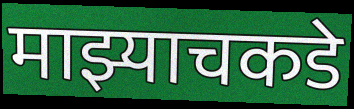
माझ्याचकडे